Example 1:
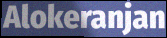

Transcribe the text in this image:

Alokeranjan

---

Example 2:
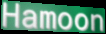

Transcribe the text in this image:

Hamoon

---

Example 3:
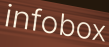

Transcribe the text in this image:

infobox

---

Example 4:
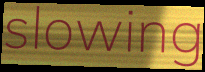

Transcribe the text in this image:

slowing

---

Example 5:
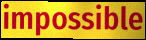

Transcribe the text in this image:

impossible